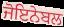
ਜੋਇਨੇਬਲ